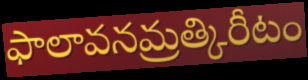
ఫాలావనమ్రత్కిరీటం